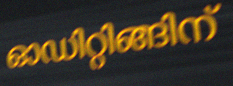
ഓഡിറ്റിങ്ങിന്